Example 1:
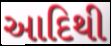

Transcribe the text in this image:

આદિથી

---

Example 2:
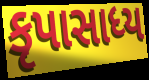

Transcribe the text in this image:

કૃપાસાધ્ય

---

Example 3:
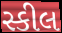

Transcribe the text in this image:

સ્કીલ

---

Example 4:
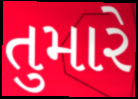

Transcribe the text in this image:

તુમારે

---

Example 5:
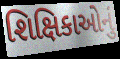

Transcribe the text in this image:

શિક્ષિકાઓનું